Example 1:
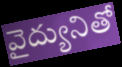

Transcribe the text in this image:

వైద్యునితో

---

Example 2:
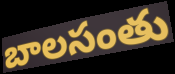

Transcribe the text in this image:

బాలసంతు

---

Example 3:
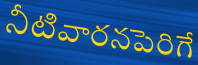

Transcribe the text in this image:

నీటివారనపెరిగే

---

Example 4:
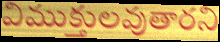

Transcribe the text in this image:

విముక్తులవుతారని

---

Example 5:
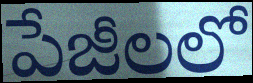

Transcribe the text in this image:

పేజీలలో